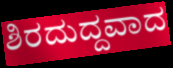
ಶಿರದುದ್ದವಾದ